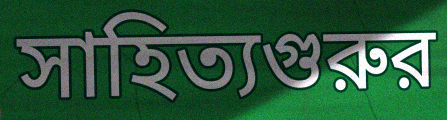
সাহিত্যগুরুর